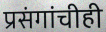
प्रसंगांचीही